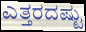
ಎತ್ತರದಷ್ಟು